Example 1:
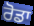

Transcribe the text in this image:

ਰੋਡਾ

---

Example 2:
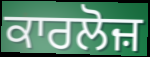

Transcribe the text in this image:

ਕਾਰਲੋਜ਼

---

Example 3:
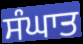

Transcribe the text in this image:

ਸੰਘਾਤ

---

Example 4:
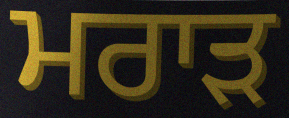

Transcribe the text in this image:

ਮਰਾੜ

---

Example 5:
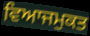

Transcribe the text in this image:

ਵਿਆਜਮੁਕਤ